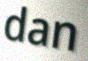
dan